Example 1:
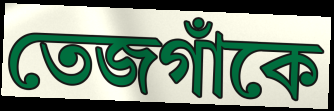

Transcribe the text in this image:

তেজগাঁকে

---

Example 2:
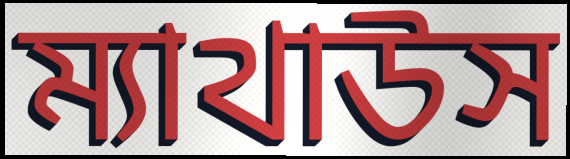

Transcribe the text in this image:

ম্যাথাউস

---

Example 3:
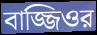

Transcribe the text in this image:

বাজ্জিওর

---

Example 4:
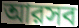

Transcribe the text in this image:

আরসব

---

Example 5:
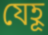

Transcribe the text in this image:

যেহূ